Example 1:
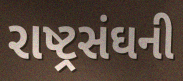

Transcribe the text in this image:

રાષ્ટ્રસંઘની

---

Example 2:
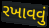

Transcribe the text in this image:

રખાવવું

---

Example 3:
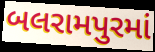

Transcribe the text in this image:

બલરામપુરમાં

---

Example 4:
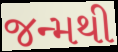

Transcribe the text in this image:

જન્મથી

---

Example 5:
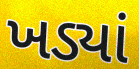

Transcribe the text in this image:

ખડ્યાં